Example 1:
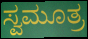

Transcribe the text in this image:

ಸ್ವಮೂತ್ರ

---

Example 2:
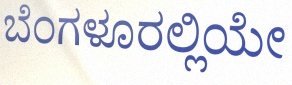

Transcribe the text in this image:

ಬೆಂಗಳೂರಲ್ಲಿಯೇ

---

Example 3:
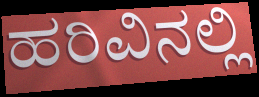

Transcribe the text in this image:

ಹರಿವಿನಲ್ಲಿ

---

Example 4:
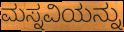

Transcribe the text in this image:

ಮಸ್ನವಿಯನ್ನು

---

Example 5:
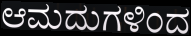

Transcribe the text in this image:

ಆಮದುಗಳಿಂದ